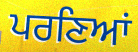
ਪਰਣਿਆਂ